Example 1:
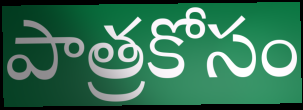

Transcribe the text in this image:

పాత్రకోసం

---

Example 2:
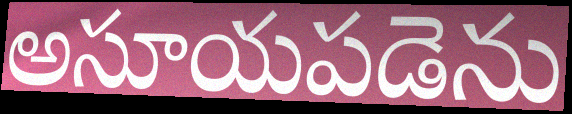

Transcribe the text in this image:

అసూయపడెను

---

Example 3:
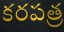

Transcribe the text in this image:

కరపత్ర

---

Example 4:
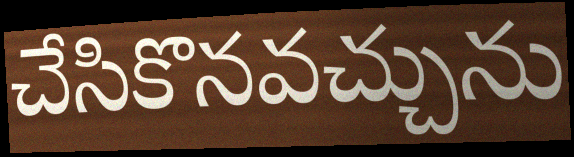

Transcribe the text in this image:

చేసికొనవచ్చును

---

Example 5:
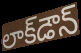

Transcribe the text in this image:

లాక్‌డౌన్